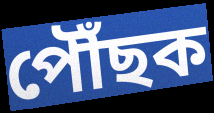
পৌঁছক